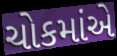
ચોકમાંએ